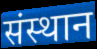
संस्थान